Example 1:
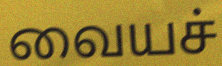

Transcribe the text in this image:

வையச்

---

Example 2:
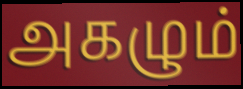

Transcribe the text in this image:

அகழும்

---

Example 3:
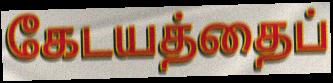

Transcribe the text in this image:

கேடயத்தைப்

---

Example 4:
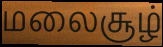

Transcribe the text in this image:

மலைசூழ்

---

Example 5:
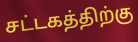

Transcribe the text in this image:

சட்டகத்திற்கு